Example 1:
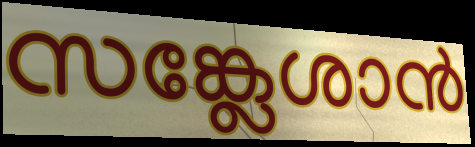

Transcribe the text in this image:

സങ്ക്ലേശാൻ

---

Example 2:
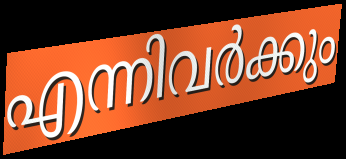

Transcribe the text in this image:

എന്നിവർക്കും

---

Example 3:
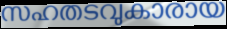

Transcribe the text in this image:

സഹതടവുകാരായ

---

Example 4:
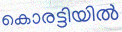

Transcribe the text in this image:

കൊരട്ടിയിൽ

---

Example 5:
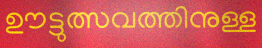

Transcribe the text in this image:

ഊട്ടുത്സവത്തിനുള്ള